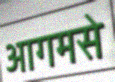
आगमसे